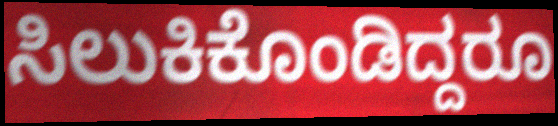
ಸಿಲುಕಿಕೊಂಡಿದ್ದರೂ